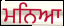
ਮਨਿਆ